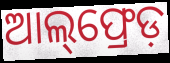
ଆଲ୍‌ଫ୍ରେଡ଼